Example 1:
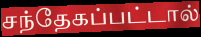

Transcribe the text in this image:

சந்தேகப்பட்டால்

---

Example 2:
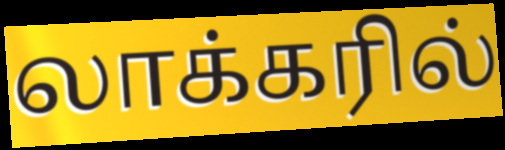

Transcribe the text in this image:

லாக்கரில்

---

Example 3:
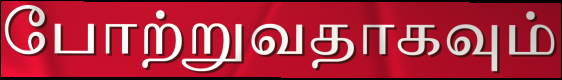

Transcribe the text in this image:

போற்றுவதாகவும்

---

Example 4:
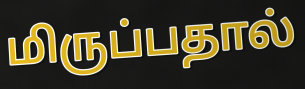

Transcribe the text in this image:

மிருப்பதால்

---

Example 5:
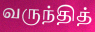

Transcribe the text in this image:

வருந்தித்